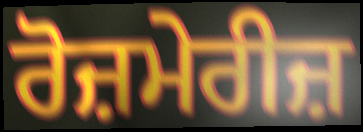
ਰੋਜ਼ਮੇਰੀਜ਼